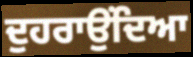
ਦੁਹਰਾਉਂਦਿਆ